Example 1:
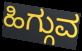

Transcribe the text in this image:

ಹಿಗ್ಗುವ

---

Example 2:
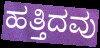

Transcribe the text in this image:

ಹತ್ತಿದವು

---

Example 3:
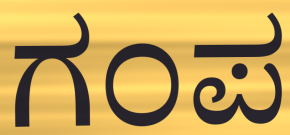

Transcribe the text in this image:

ಗಂಪ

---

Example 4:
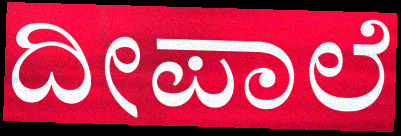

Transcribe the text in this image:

ದೀಪಾಲೆ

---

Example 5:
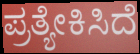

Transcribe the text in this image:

ಪ್ರತ್ಯೇಕಿಸಿದೆ